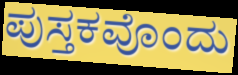
ಪುಸ್ತಕವೊಂದು